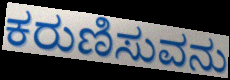
ಕರುಣಿಸುವನು